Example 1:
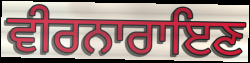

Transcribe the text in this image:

ਵੀਰਨਾਰਾਇਣ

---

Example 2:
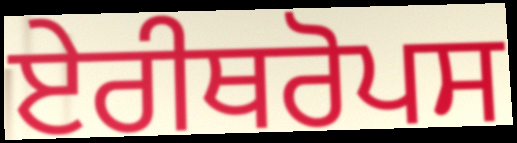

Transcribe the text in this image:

ਏਰੀਥਰੋਪਸ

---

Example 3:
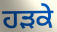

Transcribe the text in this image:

ਹੜਕੇ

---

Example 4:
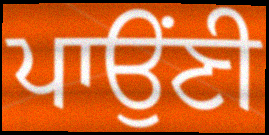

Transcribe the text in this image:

ਪਾਉਂਣੀ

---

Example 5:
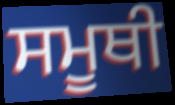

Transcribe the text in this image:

ਸਮੂਥੀ